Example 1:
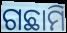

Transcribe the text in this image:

ଗଛାମି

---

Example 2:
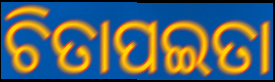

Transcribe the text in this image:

ଚିତାପଇତା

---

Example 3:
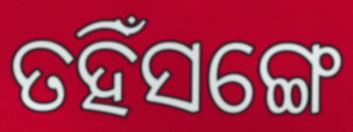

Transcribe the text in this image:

ତହିଁସଙ୍ଗେ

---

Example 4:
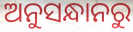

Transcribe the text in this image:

ଅନୁସନ୍ଧାନରୁ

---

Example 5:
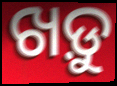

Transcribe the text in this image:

ଖଡ଼ୁ